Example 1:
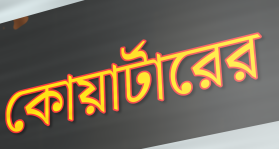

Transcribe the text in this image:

কোয়ার্টারের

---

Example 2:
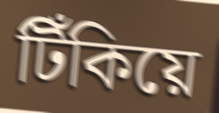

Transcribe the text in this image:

টিঁকিয়ে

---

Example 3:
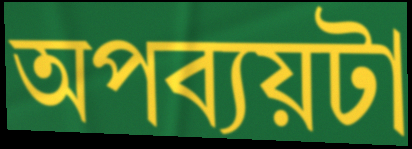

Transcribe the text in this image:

অপব্যয়টা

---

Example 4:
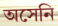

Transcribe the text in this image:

অসেনি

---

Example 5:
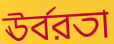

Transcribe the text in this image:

ঊর্বরতা